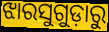
ଝାରସୁଗୁଡ଼ାରୁ